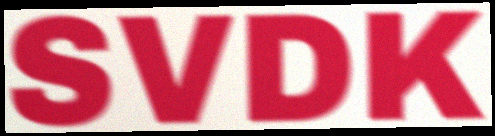
SVDK